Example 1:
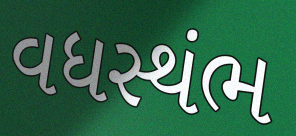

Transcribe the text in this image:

વધસ્થંભ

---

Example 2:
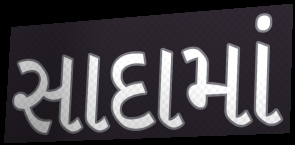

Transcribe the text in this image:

સાદામાં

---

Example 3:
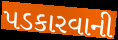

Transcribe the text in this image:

પડકારવાની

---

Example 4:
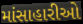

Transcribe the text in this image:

માંસાહારીઓ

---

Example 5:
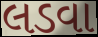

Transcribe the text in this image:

લડવા